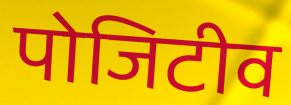
पोजिटीव